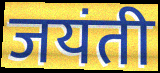
जयंती